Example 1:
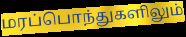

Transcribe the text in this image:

மரப்பொந்துகளிலும்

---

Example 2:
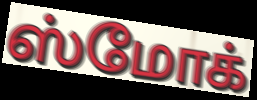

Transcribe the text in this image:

ஸ்மோக்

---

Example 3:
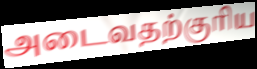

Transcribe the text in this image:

அடைவதற்குரிய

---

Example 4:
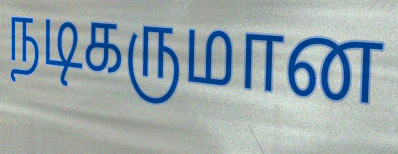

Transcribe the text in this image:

நடிகருமான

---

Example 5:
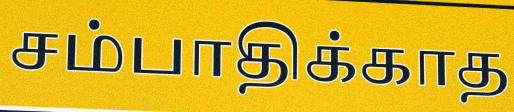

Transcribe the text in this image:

சம்பாதிக்காத